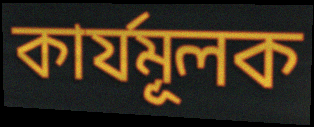
কার্যমূলক